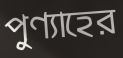
পুণ্যাহের